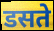
डसते